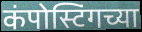
कंपोस्टिंगच्या